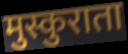
मुस्कुराता